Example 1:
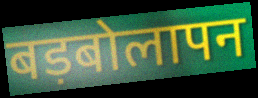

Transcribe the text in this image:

बड़बोलापन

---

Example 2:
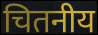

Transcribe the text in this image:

चितनीय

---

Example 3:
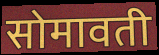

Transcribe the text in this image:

सोमावती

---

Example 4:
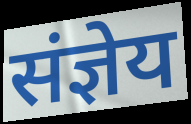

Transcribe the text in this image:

संज्ञेय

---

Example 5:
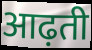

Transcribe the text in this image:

आढ़ती